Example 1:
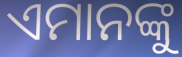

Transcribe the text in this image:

ଏମାନଙ୍କୁ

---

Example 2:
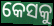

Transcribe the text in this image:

କେସକୁ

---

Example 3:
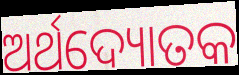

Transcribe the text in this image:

ଅର୍ଥଦ୍ୟୋତକ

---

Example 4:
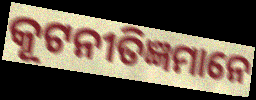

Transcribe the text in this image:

କୂଟନୀତିଜ୍ଞମାନେ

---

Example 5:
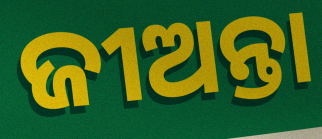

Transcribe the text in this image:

ଜୀଅନ୍ତା